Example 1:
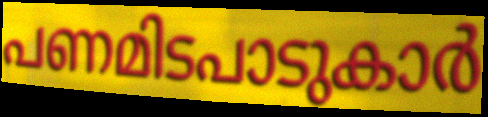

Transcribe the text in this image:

പണമിടപാടുകാർ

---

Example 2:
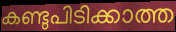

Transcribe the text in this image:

കണ്ടുപിടിക്കാത്ത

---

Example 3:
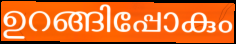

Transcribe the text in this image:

ഉറങ്ങിപ്പോകും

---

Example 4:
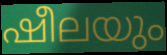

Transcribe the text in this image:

ഷീലയും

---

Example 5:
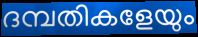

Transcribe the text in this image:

ദമ്പതികളേയും